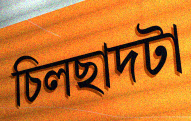
চিলছাদটা